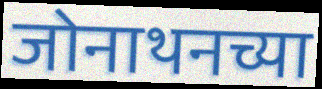
जोनाथनच्या